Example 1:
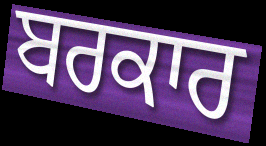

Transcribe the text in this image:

ਬਰਕਾਰ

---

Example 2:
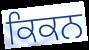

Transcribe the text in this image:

ਕਿਕਨ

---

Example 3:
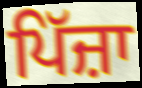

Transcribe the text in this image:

ਪਿੱਜ਼ਾ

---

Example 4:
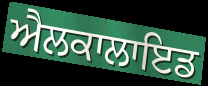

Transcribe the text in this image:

ਐਲਕਾਲਾਇਡ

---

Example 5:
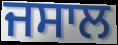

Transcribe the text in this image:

ਜਸਾਲ